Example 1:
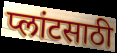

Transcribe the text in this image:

प्लांटसाठी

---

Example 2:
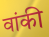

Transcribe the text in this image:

वांकी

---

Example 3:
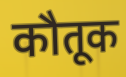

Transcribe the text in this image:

कौतूक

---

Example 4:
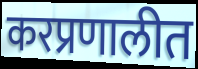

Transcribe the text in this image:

करप्रणालीत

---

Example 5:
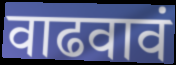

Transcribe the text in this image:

वाढवावं